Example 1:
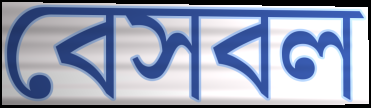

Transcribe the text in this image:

বেসবল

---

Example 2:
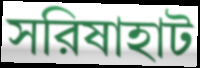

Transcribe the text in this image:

সরিষাহাট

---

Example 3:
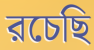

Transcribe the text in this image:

রচেছি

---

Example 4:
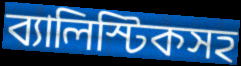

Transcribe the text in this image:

ব্যালিস্টিকসহ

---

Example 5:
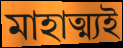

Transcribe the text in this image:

মাহাত্ম্যই